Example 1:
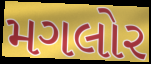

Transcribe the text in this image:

મગલોર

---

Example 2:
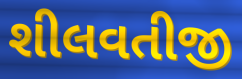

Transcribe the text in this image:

શીલવતીજી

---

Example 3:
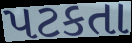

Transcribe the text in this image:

પટકતા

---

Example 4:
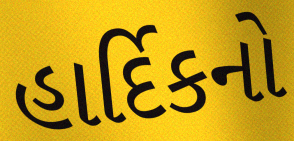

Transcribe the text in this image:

હાર્દિકનો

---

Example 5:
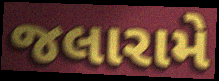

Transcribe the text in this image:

જલારામે